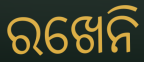
ରଖେନି